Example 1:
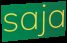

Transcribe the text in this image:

saja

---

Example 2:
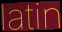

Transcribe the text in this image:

latin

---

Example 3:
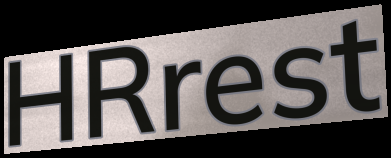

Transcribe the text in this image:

HRrest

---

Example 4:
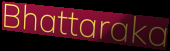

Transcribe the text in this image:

Bhattaraka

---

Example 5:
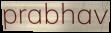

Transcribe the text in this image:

prabhav